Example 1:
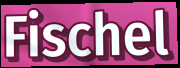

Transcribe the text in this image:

Fischel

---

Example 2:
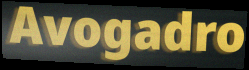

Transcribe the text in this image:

Avogadro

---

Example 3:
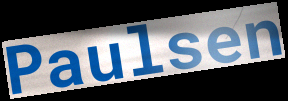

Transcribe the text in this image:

Paulsen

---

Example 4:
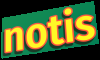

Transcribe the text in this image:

notis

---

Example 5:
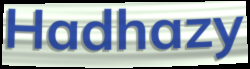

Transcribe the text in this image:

Hadhazy